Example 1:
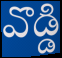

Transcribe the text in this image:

వొడ్డి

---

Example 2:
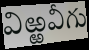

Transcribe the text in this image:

విఱ్ఱవీగు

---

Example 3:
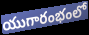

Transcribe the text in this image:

యుగారంభంలో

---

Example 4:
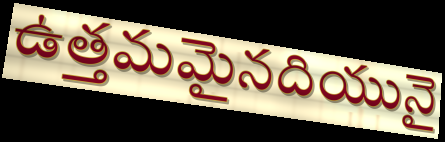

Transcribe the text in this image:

ఉత్తమమైనదియునై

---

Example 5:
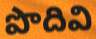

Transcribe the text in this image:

పొదివి